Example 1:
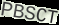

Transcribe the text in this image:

PBSCT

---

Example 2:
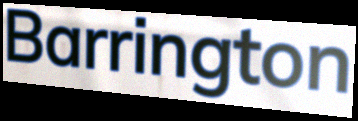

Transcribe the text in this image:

Barrington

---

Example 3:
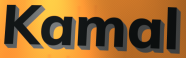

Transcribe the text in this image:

Kamal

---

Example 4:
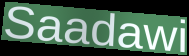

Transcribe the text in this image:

Saadawi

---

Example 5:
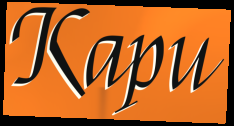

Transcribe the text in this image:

Kapu